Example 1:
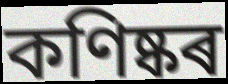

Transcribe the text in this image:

কণিষ্কৰ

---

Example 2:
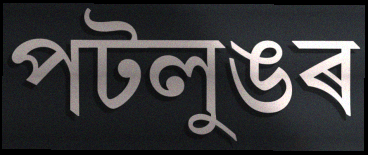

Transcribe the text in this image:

পটলুঙৰ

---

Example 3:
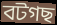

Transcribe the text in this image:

বটগছ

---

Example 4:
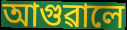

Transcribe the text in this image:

আগুৱালে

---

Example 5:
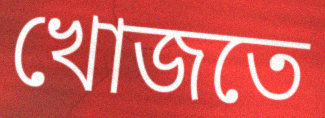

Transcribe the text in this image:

খোজতে